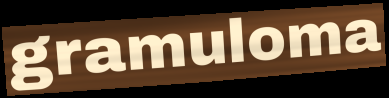
gramuloma